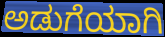
ಅಡುಗೆಯಾಗಿ